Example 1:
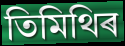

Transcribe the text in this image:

তিমিথিৰ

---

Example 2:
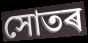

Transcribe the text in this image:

সোতৰ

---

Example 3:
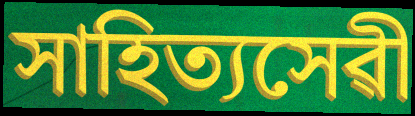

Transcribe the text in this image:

সাহিত্যসেৱী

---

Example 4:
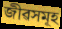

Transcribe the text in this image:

জীৱসমূহ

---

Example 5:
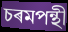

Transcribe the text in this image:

চৰমপন্থী